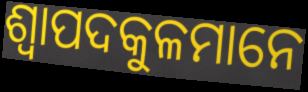
ଶ୍ୱାପଦକୁଳମାନେ